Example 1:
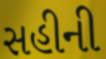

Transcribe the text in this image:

સહીની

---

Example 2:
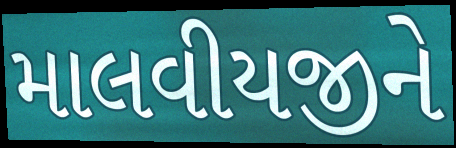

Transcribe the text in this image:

માલવીયજીને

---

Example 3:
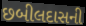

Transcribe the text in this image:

છબીલદાસની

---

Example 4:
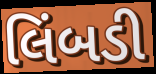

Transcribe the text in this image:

લિંબડી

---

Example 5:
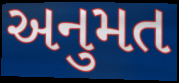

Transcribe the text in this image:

અનુમત